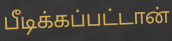
பீடிக்கப்பட்டான்